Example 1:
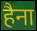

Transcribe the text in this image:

हैना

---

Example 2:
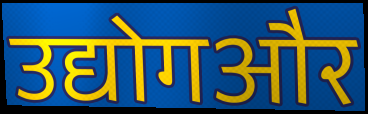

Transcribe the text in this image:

उद्योगऔर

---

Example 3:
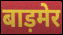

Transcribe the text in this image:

बाड़मेर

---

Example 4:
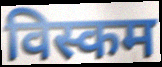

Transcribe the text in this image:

विस्कम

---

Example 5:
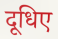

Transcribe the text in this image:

दूधिए